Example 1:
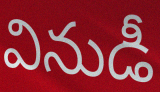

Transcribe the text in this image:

వినుడీ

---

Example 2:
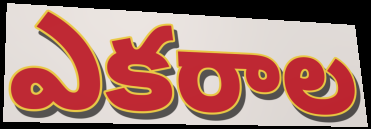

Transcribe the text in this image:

ఎకరాల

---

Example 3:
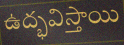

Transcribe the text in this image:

ఉద్భవిస్తాయి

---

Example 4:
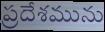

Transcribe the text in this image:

ప్రదేశమును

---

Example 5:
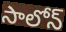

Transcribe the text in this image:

సాలోన్